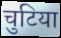
चुटिया